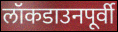
लॉकडाउनपूर्वी